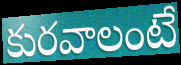
కురవాలంటే